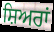
ਸ਼ਿਅਰਾਂ